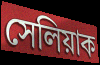
সেলিয়াক